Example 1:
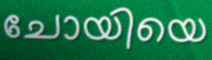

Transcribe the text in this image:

ചോയിയെ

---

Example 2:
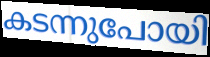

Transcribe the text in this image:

കടന്നുപോയി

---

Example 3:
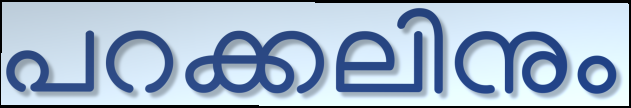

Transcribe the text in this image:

പറക്കലിനും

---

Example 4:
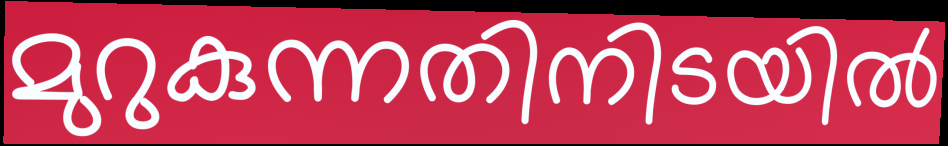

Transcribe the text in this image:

മുറുകുന്നതിനിടയിൽ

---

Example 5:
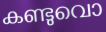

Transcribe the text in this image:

കണ്ടുവൊ